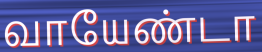
வாயேண்டா